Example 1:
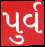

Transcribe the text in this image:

પુર્વ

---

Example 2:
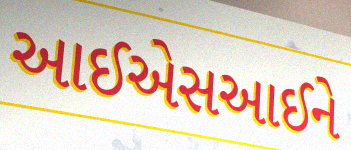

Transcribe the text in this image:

આઈએસઆઈને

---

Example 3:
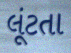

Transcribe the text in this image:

લૂંટતા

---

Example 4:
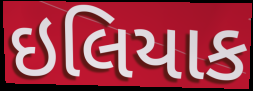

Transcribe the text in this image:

ઇલિયાક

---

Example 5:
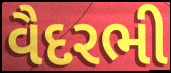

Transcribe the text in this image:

વૈદરભી